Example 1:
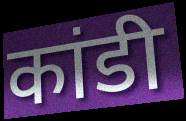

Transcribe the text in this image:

कांडी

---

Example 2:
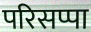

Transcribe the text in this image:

परिसप्पा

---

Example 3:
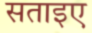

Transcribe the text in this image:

सताइए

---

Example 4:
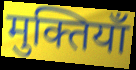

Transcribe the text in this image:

मुक्तियाँ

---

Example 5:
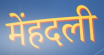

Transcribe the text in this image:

मेंहदली